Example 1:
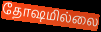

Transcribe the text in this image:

தோஷமில்லை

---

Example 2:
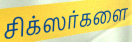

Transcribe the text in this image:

சிக்ஸர்களை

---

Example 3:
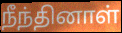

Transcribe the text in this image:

நீந்தினாள்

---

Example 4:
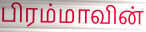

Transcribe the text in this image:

பிரம்மாவின்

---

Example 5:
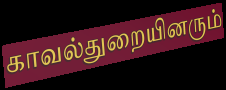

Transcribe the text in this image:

காவல்துறையினரும்